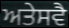
ਅਤੇਸਵੈ